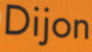
Dijon